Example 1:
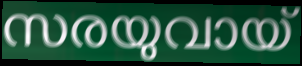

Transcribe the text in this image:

സരയുവായ്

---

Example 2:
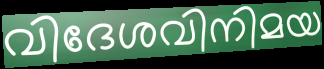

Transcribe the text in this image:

വിദേശവിനിമയ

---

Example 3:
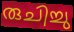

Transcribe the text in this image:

രുചിച്ചു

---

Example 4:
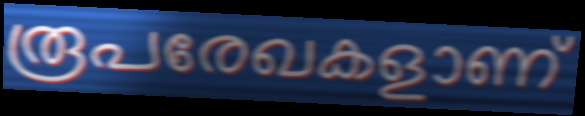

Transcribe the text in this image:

രൂപരേഖകളാണ്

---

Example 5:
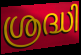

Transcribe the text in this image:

ശ്രദ്ധി